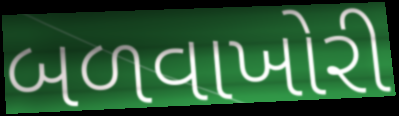
બળવાખોરી